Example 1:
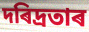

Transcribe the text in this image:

দৰিদ্ৰতাৰ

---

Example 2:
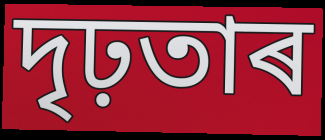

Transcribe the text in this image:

দৃঢ়তাৰ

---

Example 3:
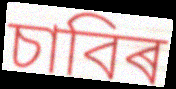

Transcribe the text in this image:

চাবিৰ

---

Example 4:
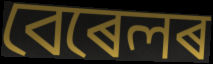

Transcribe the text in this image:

বেৰেলৰ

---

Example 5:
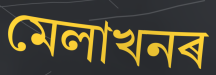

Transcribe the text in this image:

মেলাখনৰ